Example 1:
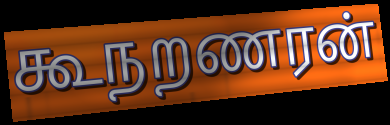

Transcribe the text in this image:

கூநறணரன்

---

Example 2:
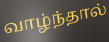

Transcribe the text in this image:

வாழ்ந்தால்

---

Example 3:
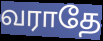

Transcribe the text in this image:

வராதே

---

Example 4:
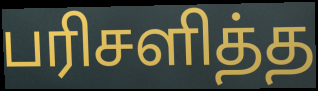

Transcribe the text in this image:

பரிசளித்த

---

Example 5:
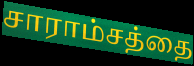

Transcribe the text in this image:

சாராம்சத்தை